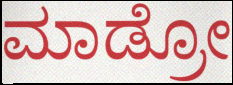
ಮಾಡ್ರೋ